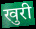
खुरी